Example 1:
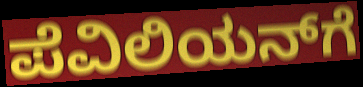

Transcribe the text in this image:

ಪೆವಿಲಿಯನ್‌ಗೆ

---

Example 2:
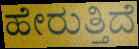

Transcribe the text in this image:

ಹೇರುತ್ತಿದೆ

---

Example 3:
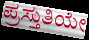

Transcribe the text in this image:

ಪ್ರಸ್ತುತಿಯೇ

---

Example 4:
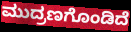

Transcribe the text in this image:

ಮುದ್ರಣಗೊಂಡಿದೆ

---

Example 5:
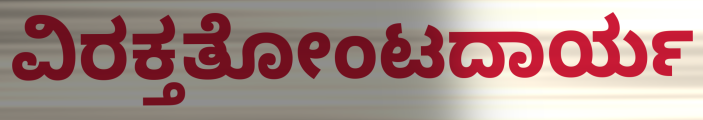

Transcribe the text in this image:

ವಿರಕ್ತತೋಂಟದಾರ್ಯ